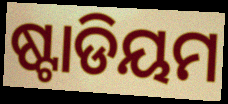
ଷ୍ଟାଡିୟମ